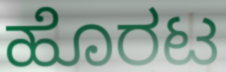
ಹೊರಟ